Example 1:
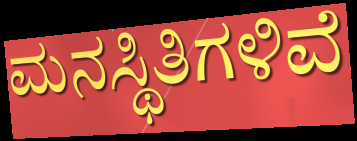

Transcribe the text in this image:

ಮನಸ್ಥಿತಿಗಳಿವೆ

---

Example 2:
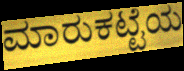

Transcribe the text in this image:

ಮಾರುಕಟ್ಟೆಯ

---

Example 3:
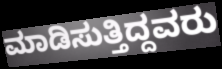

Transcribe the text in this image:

ಮಾಡಿಸುತ್ತಿದ್ದವರು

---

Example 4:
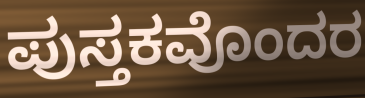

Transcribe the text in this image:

ಪುಸ್ತಕವೊಂದರ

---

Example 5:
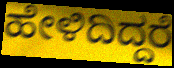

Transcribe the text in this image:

ಹೇಳಿದಿದ್ದರೆ